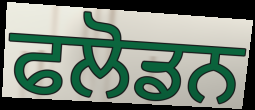
ਫਲੋਡਨ